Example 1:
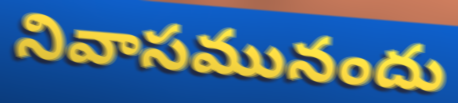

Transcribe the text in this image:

నివాసమునందు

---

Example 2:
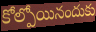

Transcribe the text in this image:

కోల్పోయినందుకు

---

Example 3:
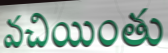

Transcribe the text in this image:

వచియింతు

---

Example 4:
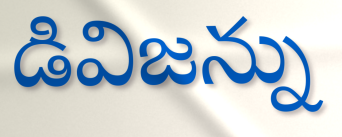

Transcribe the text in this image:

డివిజన్ను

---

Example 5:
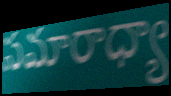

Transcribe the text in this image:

సమారాధ్యా